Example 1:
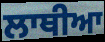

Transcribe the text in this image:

ਲਾਥੀਆ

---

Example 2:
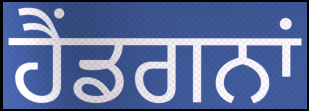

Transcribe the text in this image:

ਹੈਂਡਗਨਾਂ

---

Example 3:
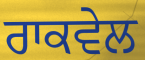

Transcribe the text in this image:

ਰਾਕਵੇਲ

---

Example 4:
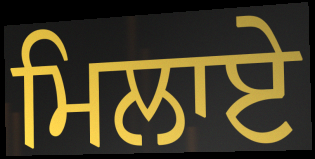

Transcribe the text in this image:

ਮਿਲਾਏ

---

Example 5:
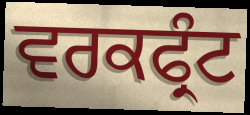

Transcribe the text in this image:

ਵਰਕਫ੍ਰੰਟ